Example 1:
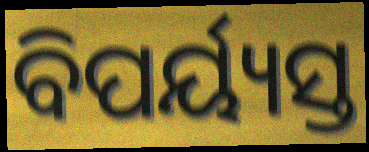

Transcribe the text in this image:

ବିପର୍ୟ୍ୟସ୍ତ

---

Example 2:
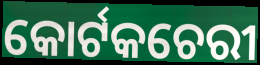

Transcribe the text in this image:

କୋର୍ଟକଚେରୀ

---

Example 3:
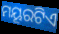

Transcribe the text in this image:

ମୟୂରଟିଏ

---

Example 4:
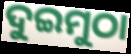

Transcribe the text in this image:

ଦୁଇମୁଠା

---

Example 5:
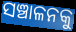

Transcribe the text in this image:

ସଞ୍ଚାଳନକୁ